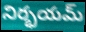
నిర్భయమ్